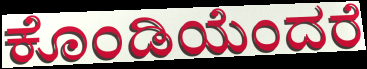
ಕೊಂಡಿಯೆಂದರೆ